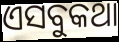
ଏସବୁକଥା